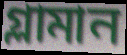
গ্লামান